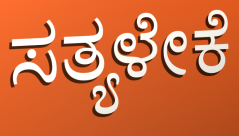
ಸತ್ಯಳೇಕೆ